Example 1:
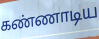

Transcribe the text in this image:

கண்ணாடிய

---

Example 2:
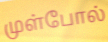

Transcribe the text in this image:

முள்போல்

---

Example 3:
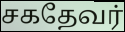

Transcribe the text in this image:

சகதேவர்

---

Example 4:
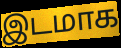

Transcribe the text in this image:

இடமாக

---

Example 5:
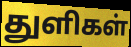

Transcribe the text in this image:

துளிகள்